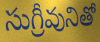
సుగ్రీవునితో